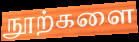
நூற்களை